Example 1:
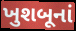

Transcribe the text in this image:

ખુશબૂનાં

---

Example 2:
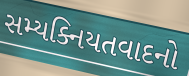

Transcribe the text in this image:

સમ્યક્નિયતવાદનો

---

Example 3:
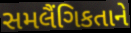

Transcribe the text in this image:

સમલૈંગિકતાને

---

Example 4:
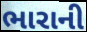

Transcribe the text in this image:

ભારાની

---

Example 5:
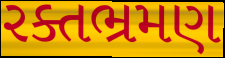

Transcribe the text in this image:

રક્તભ્રમણ